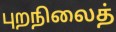
புறநிலைத்